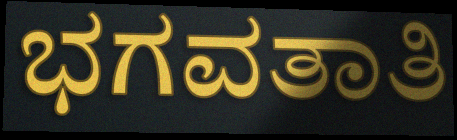
ಭಗವತಾತಿ